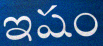
ఇషం